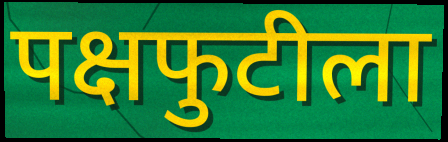
पक्षफुटीला